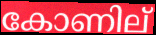
കോണില്